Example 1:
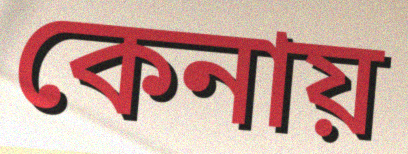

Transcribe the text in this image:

কেনায়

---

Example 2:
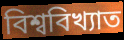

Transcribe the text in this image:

বিশ্ববিখ্যাত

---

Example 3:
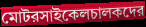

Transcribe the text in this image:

মোটরসাইকেলচালকদের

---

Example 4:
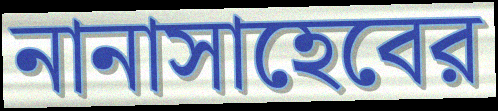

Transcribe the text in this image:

নানাসাহেবের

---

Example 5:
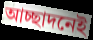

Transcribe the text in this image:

আচ্ছাদনেই